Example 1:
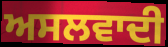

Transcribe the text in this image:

ਅਸਲਵਾਦੀ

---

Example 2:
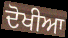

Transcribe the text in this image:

ਦੋਖੀਆ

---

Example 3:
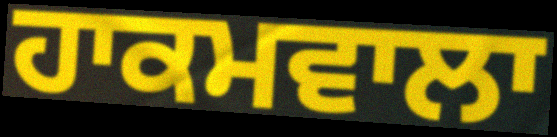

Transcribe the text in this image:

ਹਾਕਮਵਾਲਾ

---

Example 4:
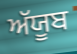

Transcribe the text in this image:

ਅੱਯੂਬ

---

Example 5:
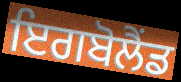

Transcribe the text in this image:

ਇਗਬੋਲੈਂਡ